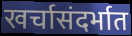
खर्चासंदर्भात